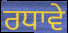
ਰਧਾਵੇ